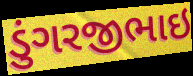
ડુંગરજીભાઇ